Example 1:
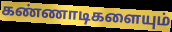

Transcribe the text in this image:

கண்ணாடிகளையும்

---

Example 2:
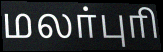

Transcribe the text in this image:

மலர்புரி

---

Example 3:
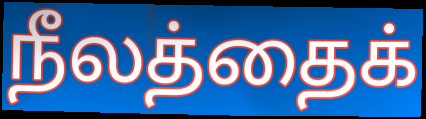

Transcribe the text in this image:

நீலத்தைக்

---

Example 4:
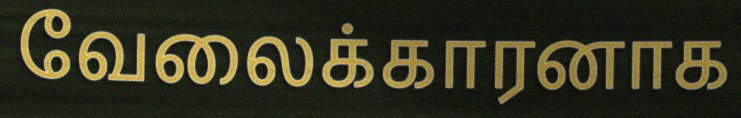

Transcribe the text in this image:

வேலைக்காரனாக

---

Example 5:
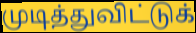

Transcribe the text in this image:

முடித்துவிட்டுக்